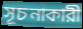
সূচনাকারী